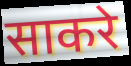
साकरे